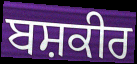
ਬਸ਼ਕੀਰ